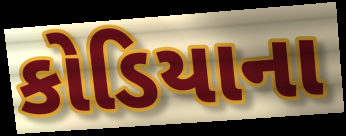
કોડિયાના